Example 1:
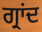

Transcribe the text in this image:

ਗ੍ਰਾਂਦ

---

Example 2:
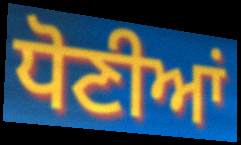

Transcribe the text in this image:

ਧੋਣੀਆਂ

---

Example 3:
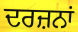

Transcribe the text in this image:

ਦਰਜ਼ਨਾਂ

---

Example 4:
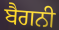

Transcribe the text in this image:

ਬੈਗਨੀ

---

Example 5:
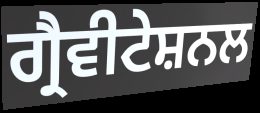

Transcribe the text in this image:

ਗ੍ਰੈਵੀਟੇਸ਼ਨਲ